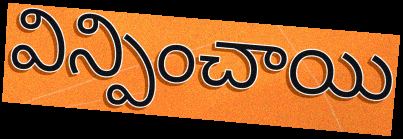
విన్పించాయి